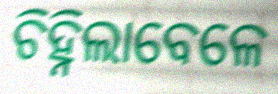
ଚିହ୍ନିଲାବେଳେ